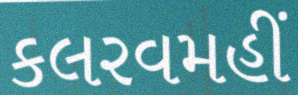
કલરવમહીં